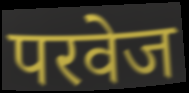
परवेज